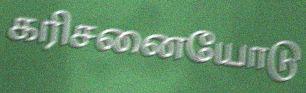
கரிசனையோடு